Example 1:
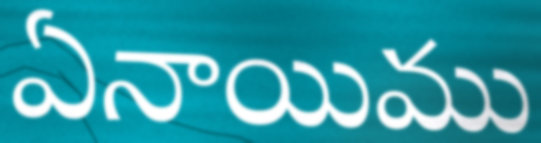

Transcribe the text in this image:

ఏనాయిము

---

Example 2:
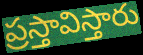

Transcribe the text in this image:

ప్రస్తావిస్తారు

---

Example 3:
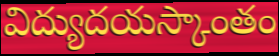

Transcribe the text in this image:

విద్యుదయస్కాంతం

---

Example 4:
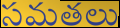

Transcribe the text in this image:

సమతలు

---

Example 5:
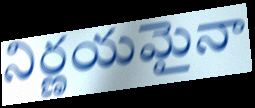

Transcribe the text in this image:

నిర్ణయమైనా